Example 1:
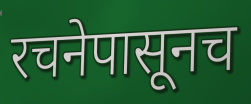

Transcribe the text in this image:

रचनेपासूनच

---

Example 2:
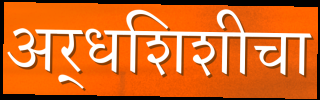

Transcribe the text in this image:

अर्धशिशीचा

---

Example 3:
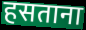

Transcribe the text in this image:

हसताना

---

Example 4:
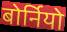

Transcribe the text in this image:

बोर्नियो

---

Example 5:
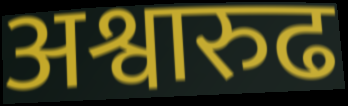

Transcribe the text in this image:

अश्वारुढ